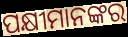
ପକ୍ଷୀମାନଙ୍କର